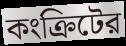
কংক্রিটের